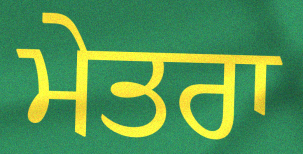
ਮੇਤਰਾ